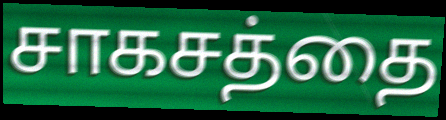
சாகசத்தை